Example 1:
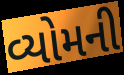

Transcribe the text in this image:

વ્યોમની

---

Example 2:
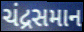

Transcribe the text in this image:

ચંદ્રસમાન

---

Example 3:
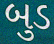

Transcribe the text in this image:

બુડ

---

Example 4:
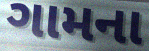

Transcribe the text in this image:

ગામના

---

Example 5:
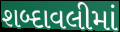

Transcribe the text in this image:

શબ્દાવલીમાં